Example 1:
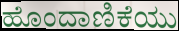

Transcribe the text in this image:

ಹೊಂದಾಣಿಕೆಯು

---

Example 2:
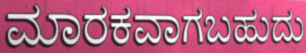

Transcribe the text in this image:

ಮಾರಕವಾಗಬಹುದು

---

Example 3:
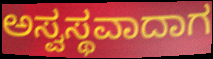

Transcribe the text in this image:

ಅಸ್ವಸ್ಥವಾದಾಗ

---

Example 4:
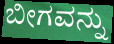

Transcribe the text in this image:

ಬೀಗವನ್ನು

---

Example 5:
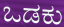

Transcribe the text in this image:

ಒಡಕು